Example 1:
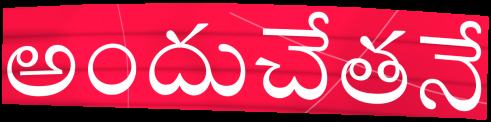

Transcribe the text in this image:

అందుచేతనే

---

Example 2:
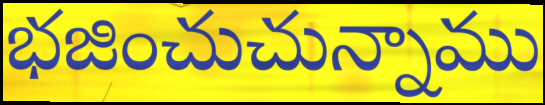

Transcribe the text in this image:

భజించుచున్నాము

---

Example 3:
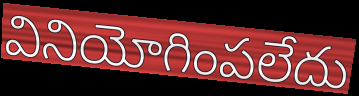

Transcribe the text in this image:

వినియోగింపలేదు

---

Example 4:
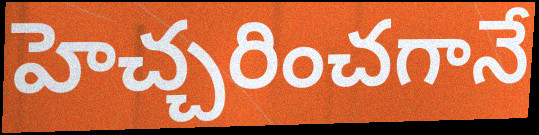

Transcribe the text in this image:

హెచ్చరించగానే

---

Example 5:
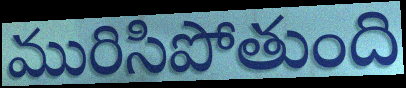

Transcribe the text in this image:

మురిసిపోతుంది